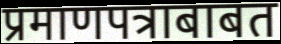
प्रमाणपत्राबाबत